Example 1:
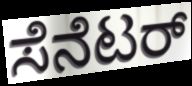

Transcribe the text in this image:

ಸೆನೆಟರ್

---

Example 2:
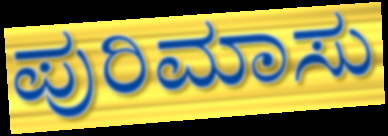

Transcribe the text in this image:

ಪುರಿಮಾಸು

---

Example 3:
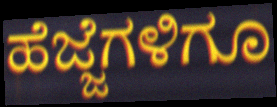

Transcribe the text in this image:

ಹೆಜ್ಜೆಗಳಿಗೂ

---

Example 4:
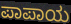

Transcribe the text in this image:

ಪಾಪಾಯ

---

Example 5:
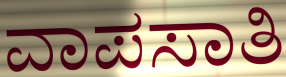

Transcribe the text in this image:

ವಾಪಸಾತಿ